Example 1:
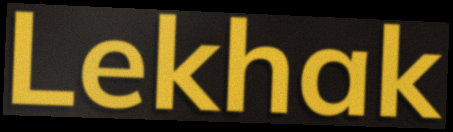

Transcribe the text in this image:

Lekhak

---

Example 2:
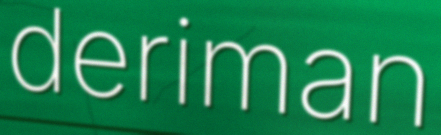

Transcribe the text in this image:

deriman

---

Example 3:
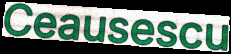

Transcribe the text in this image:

Ceausescu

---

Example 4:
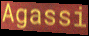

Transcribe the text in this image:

Agassi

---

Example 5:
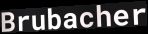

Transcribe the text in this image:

Brubacher